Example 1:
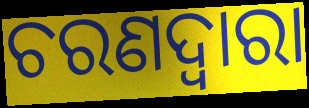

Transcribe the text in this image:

ଚରଣଦ୍ୱାରା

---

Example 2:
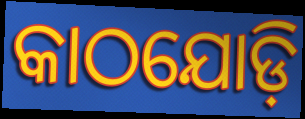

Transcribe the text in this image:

କାଠଯୋଡ଼ି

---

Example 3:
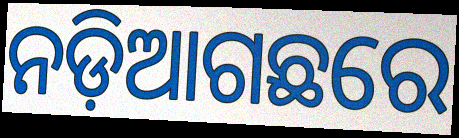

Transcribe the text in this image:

ନଡ଼ିଆଗଛରେ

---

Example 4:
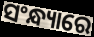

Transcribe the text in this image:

ସଂନ୍ଧ୍ୟାରେ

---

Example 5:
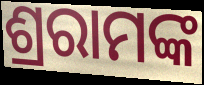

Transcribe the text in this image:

ଶ୍ରରାମଙ୍କ